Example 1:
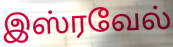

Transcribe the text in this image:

இஸ்ரவேல்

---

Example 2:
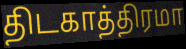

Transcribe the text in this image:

திடகாத்திரமா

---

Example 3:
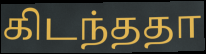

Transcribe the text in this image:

கிடந்ததா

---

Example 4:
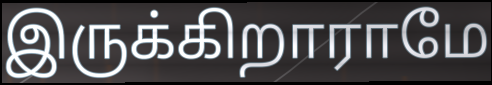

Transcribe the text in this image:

இருக்கிறாராமே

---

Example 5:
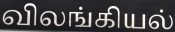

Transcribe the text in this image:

விலங்கியல்